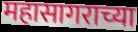
महासागराच्या